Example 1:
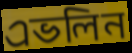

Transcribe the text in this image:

এভলিন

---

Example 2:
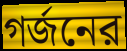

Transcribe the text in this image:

গর্জনের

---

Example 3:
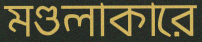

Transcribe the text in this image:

মণ্ডলাকারে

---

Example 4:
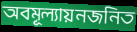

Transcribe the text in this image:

অবমূল্যায়নজনিত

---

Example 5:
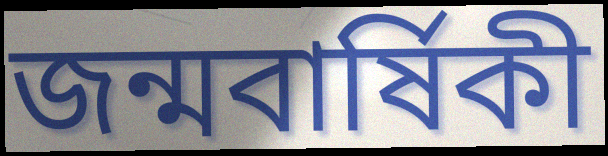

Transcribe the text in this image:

জন্মবার্ষিকী